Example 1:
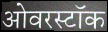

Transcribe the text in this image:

ओवरस्टॉक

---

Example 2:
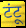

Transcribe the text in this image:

टंटू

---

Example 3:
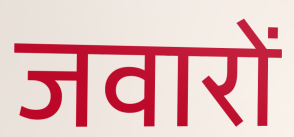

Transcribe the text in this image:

जवारों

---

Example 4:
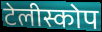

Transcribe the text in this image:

टेलीस्‍कोप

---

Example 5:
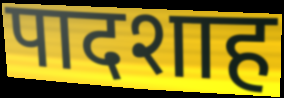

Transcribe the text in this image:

पादशाह